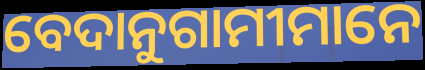
ବେଦାନୁଗାମୀମାନେ